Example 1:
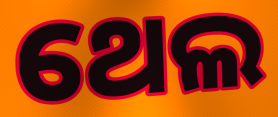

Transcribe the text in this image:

ଥେଲ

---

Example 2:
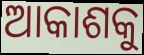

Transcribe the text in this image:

ଆକାଶକୁ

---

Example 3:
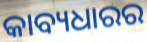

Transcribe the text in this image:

କାବ୍ୟଧାରର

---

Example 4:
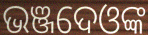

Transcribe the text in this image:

ଭଞ୍ଜଦେଓଙ୍କ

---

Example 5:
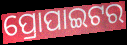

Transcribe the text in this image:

ପ୍ରୋପାଇଟର